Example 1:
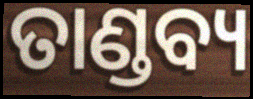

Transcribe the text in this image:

ତାଣ୍ଡବ୍ୟ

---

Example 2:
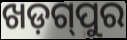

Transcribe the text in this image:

ଖଡ଼ଗ୍‌ପୁର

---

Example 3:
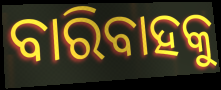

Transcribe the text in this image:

ବାରିବାହକୁ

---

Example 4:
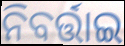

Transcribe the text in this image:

ନିବର୍ତ୍ତାଇ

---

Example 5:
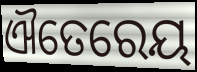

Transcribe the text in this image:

ଐତେରେୟ